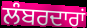
ਲੰਬਰਦਾਰਾਂ